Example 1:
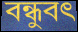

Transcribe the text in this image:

বন্ধুবৎ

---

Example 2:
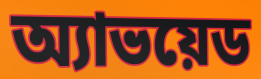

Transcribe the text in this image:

অ্যাভয়েড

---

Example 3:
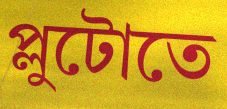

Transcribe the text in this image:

প্লুটোতে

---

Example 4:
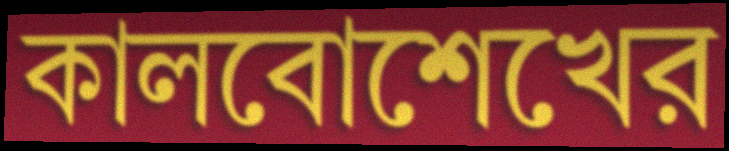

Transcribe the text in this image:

কালবোশেখের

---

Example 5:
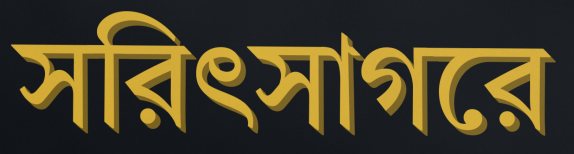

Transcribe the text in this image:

সরিৎসাগরে